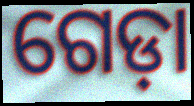
ଗେଡ଼ା